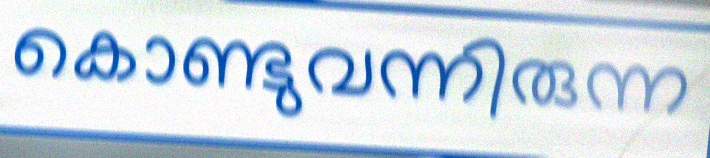
കൊണ്ടുവന്നിരുന്ന